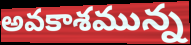
అవకాశమున్న